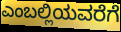
ಎಂಬಲ್ಲಿಯವರೆಗೆ